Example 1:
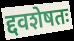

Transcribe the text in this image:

द्दवशेषतः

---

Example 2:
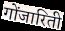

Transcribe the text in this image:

गोंजारिती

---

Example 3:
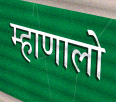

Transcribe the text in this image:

म्हाणालो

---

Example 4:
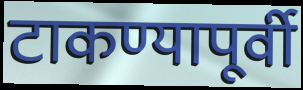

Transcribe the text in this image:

टाकण्यापूर्वी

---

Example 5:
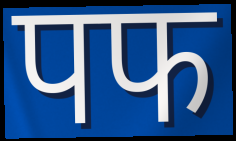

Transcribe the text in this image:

पफ